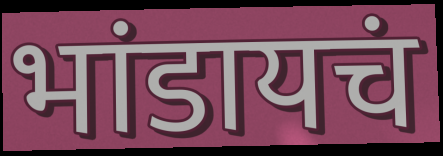
भांडायचं